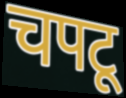
चपटू